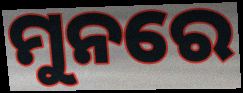
ମୁନରେ